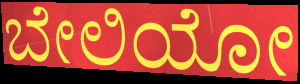
ಬೇಲಿಯೋ